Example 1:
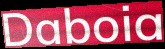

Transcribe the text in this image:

Daboia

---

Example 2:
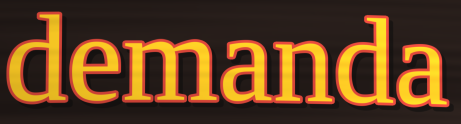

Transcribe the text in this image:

demanda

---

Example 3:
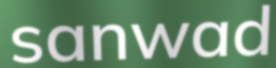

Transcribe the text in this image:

sanwad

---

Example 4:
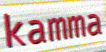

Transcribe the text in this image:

kamma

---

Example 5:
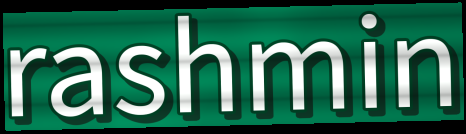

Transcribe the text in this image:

rashmin